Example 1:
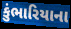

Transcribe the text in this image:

કુંભારિયાના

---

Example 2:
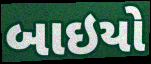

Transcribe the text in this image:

બાઇયો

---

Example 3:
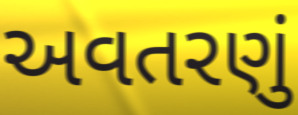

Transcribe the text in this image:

અવતરણું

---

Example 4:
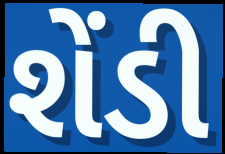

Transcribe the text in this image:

શેંડી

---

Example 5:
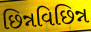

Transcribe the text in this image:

છિન્નવિછિન્ન